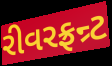
રીવરફ્રન્ર્ટ